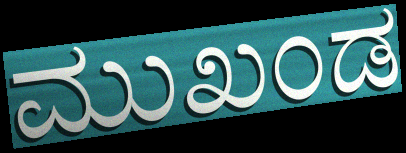
ಮುಖಂಡ